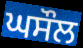
ਘਸੌਲ